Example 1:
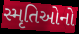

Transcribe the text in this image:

સ્મૃતિઓનો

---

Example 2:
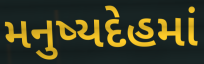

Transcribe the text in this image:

મનુષ્યદેહમાં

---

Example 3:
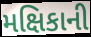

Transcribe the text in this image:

મક્ષિકાની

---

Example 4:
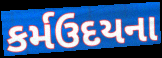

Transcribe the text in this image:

કર્મઉદયના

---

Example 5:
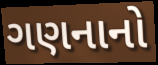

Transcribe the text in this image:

ગણનાનો